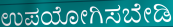
ಉಪಯೋಗಿಸಬೇಡಿ